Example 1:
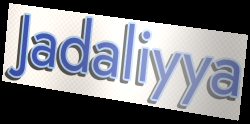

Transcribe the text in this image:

Jadaliyya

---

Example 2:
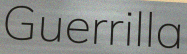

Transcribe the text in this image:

Guerrilla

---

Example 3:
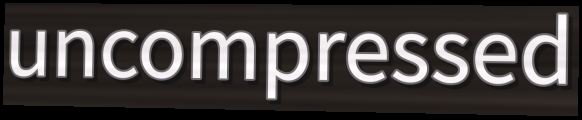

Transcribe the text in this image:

uncompressed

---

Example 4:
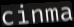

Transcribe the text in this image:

cinma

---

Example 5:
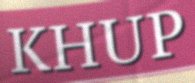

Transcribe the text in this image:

KHUP